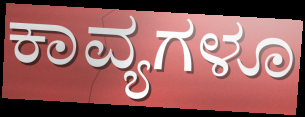
ಕಾವ್ಯಗಳೂ